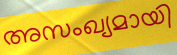
അസംഖ്യമായി